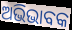
ଅଭିଭାବକ